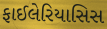
ફાઈલેરિયાસિસ